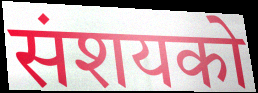
संशयको